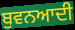
ਬੁਵਨਆਦੀ